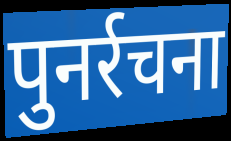
पुनर्रचना